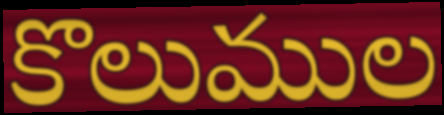
కొలుముల